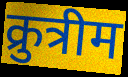
क्रुत्रीम